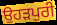
ਉਹੜਪੁਰੀ